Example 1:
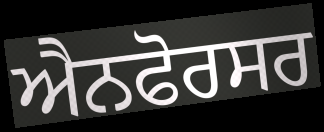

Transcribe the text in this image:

ਐਨਫੋਰਸਰ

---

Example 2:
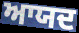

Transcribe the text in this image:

ਆਯਦ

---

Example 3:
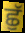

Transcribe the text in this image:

ਛੁੱ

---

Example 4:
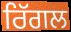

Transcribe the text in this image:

ਰਿੱਗਲ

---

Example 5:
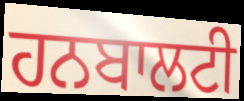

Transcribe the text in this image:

ਹਨਬਾਲਟੀ